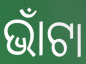
ଭାଁଟା